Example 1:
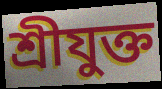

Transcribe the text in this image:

শ্রীযুক্ত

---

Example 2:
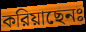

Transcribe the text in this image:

করিয়াছেনঃ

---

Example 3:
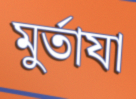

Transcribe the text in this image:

মুর্তাযা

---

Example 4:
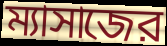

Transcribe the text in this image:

ম্যাসাজের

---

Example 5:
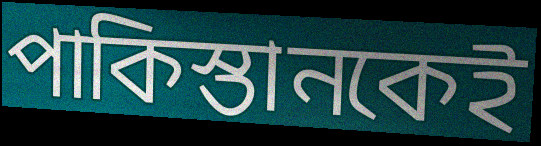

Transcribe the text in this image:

পাকিস্তানকেই